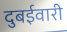
दुबईवारी